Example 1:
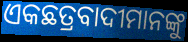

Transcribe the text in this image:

ଏକଛତ୍ରବାଦୀମାନଙ୍କୁ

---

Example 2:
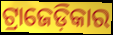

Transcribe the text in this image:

ଟ୍ରାଜେଡ଼ିକାର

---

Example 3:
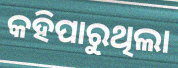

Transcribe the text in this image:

କହିପାରୁଥିଲା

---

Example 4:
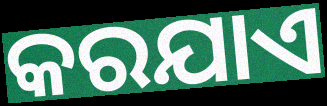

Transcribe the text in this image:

କରଯାଏ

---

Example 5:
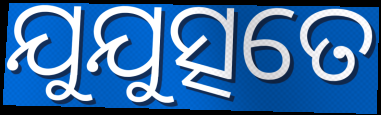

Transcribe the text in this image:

ଯୁଯୁତ୍ସତେ